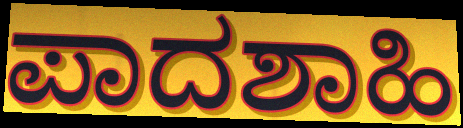
ಪಾದಶಾಹಿ